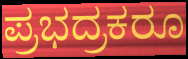
ಪ್ರಭದ್ರಕರೂ